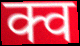
क्व